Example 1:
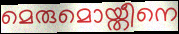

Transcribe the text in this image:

മെരുമൊയ്തീനെ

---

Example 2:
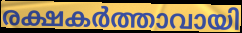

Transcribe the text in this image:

രക്ഷകർത്താവായി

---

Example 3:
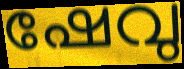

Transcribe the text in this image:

ഷേവു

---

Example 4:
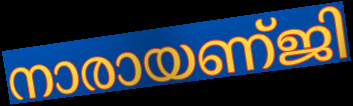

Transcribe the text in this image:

നാരായണ്ജി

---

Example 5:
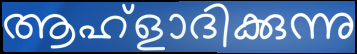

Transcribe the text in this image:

ആഹ്ളാദിക്കുന്നു